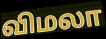
விமலா